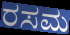
ರಸಮ